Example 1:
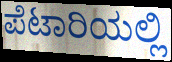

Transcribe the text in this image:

ಪೆಟಾರಿಯಲ್ಲಿ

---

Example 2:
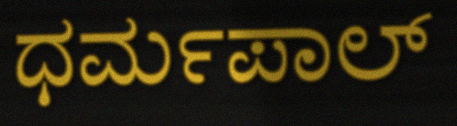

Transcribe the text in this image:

ಧರ್ಮಪಾಲ್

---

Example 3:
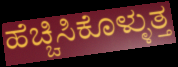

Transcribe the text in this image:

ಹೆಚ್ಚಿಸಿಕೊಳ್ಳುತ್ತ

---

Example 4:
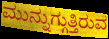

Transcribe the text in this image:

ಮುನ್ನುಗ್ಗುತ್ತಿರುವ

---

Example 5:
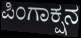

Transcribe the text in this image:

ಪಿಂಗಾಕ್ಷನ